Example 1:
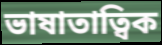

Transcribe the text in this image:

ভাষাতাত্বিক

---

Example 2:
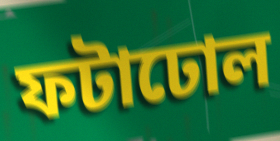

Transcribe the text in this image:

ফটাঢোল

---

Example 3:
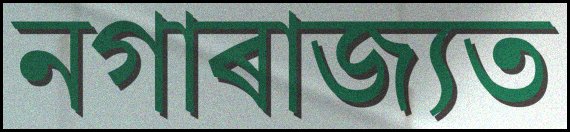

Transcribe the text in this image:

নগাৰাজ্যত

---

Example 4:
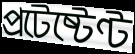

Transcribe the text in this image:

প্ৰটেষ্টেণ্ট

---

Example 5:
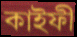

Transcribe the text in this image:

কাইফী